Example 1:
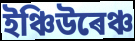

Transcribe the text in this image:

ইঞ্চিউৰেঞ্চ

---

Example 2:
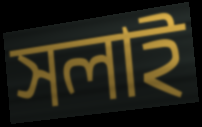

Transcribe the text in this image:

সলাই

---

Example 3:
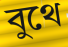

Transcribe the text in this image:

বুথে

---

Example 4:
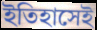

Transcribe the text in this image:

ইতিহাসেই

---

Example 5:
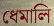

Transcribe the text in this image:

ধেমালি